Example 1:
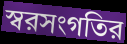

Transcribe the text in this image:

স্বরসংগতির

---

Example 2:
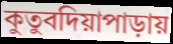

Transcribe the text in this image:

কুতুবদিয়াপাড়ায়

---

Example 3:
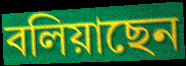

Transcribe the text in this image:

বলিয়াছেন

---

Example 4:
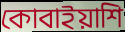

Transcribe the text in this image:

কোবাইয়াশি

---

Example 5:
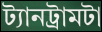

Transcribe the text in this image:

ট্যানট্রামটা